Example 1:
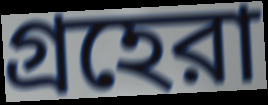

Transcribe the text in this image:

গ্রহেরা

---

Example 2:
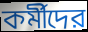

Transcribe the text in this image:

কর্মীদের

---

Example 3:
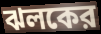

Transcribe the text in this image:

ঝলকের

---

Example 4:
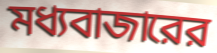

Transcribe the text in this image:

মধ্যবাজারের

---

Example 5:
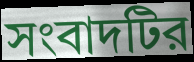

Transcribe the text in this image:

সংবাদটির